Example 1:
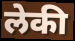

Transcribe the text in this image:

लेकी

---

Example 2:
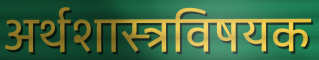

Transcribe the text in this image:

अर्थशास्त्रविषयक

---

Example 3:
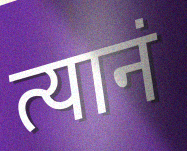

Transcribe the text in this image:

त्यानं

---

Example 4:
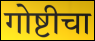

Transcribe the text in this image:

गोष्टीचा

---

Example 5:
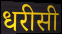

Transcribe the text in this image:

धरीसी